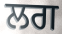
ਲਗ